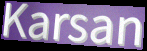
Karsan